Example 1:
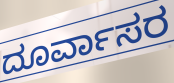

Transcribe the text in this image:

ದೂರ್ವಾಸರ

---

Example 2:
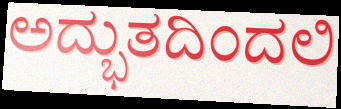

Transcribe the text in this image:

ಅದ್ಭುತದಿಂದಲಿ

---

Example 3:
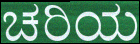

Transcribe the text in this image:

ಚರಿಯ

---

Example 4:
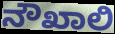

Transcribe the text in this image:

ನೌಖಾಲಿ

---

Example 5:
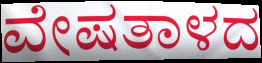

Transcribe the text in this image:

ವೇಷತಾಳದ